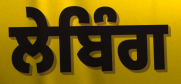
ਲੇਬਿੰਗ